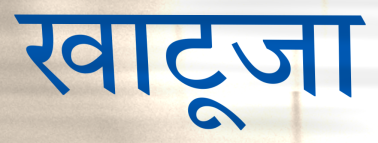
खाटूजा